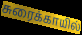
சுரைக்காயில்